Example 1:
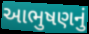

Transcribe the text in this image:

આભુષણનું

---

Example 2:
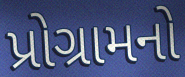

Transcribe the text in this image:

પ્રોગ્રામનો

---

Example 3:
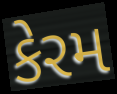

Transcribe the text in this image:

કેરમ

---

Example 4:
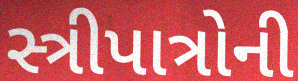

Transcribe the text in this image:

સ્ત્રીપાત્રોની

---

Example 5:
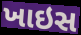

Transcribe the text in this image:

ખાઇસ